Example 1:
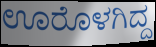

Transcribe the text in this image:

ಊರೊಳಗಿದ್ದ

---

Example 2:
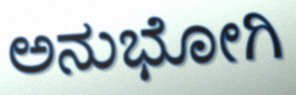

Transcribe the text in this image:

ಅನುಭೋಗಿ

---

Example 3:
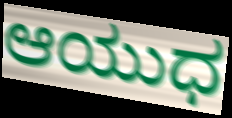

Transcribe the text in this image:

ಆಯುಧ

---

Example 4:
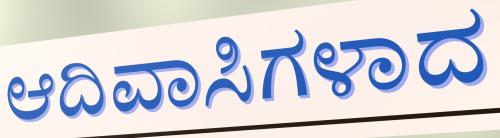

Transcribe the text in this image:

ಆದಿವಾಸಿಗಳಾದ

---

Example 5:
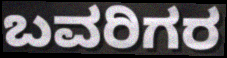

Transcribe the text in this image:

ಬವರಿಗರ